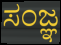
ಸಂಜ್ಞ